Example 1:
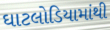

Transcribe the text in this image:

ઘાટલોડિયામાંથી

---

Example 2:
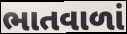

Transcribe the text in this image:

ભાતવાળાં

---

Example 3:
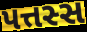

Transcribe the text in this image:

પત્તસ્સ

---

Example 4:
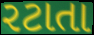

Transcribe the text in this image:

રટાતા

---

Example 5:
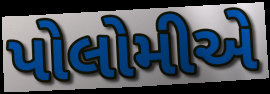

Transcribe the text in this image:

પોલોમીએ